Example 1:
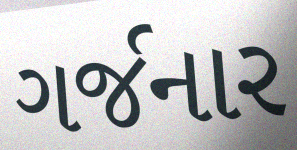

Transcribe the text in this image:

ગર્જનાર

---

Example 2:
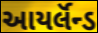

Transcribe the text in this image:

આયર્લૅન્ડ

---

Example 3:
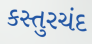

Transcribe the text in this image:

કસ્તુરચંદ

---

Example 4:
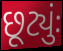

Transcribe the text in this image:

છૂટ્યુંઃ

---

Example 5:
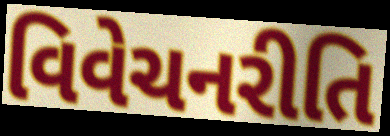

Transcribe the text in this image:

વિવેચનરીતિ